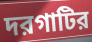
দরগাটির